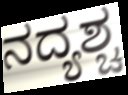
ನದ್ಯಶ್ಚ